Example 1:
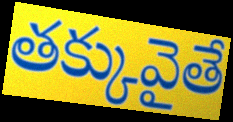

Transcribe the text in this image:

తక్కువైతే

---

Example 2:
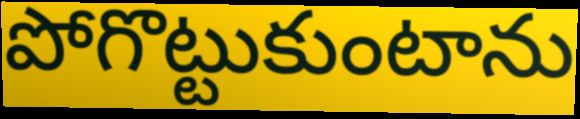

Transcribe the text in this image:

పోగొట్టుకుంటాను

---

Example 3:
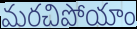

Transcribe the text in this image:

మరచిపోయాం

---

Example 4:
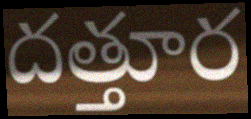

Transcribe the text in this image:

దత్తూర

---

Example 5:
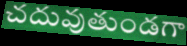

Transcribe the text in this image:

చదువుతుండగా